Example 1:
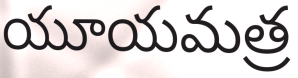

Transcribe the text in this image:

యూయమత్ర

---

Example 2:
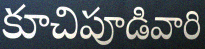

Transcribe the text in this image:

కూచిపూడివారి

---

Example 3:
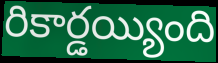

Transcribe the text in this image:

రికార్డయ్యింది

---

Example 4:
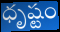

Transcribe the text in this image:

ధృష్టం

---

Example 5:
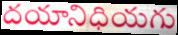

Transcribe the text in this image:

దయానిధియగు